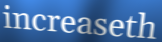
increaseth